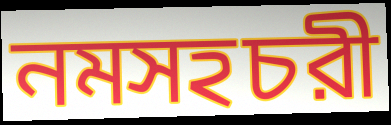
নমসহচরী